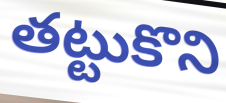
తట్టుకొని